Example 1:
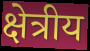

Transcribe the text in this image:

क्षेत्रीय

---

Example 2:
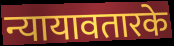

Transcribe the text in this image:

न्यायावतारके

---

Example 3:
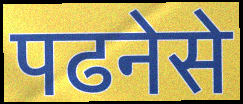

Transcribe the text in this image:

पढनेसे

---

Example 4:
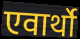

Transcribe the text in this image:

एवार्थो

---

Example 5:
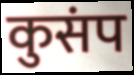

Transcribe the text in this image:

कुसंप